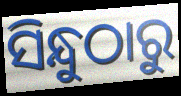
ସିନ୍ଧୁଠାରୁ